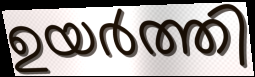
ഉയർത്തി